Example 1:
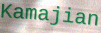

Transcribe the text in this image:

Kamajian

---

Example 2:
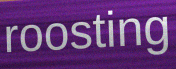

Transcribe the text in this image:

roosting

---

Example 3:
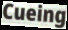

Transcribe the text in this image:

Cueing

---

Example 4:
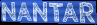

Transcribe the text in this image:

NANTAR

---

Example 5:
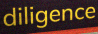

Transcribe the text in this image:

diligence